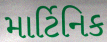
માર્ટિનિક